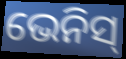
ଭେନିସ୍